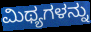
ಮಿಥ್ಯಗಳನ್ನು